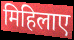
मिहिलाए